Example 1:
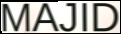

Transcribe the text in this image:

MAJID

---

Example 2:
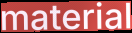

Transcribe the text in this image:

material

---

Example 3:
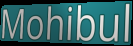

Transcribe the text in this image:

Mohibul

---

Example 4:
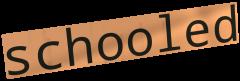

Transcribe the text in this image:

schooled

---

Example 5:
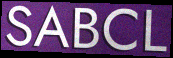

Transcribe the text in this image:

SABCL